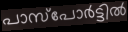
പാസ്പോർട്ടിൽ